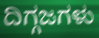
ದಿಗ್ಗಜಗಳು